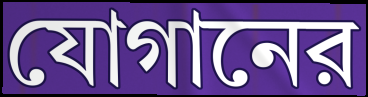
যোগানের